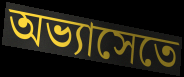
অভ্যাসেতে